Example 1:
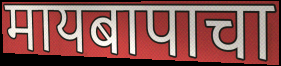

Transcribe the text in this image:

मायबापाचा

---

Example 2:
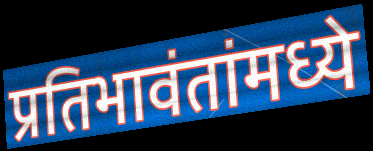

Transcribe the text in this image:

प्रतिभावंतांमध्ये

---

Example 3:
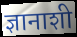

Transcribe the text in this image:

ज्ञानाशी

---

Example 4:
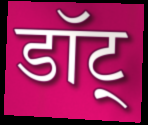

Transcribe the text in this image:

डॉट्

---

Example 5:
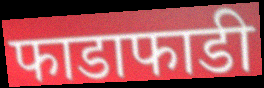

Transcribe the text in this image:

फाडाफाडी